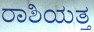
ರಾಶಿಯತ್ತ